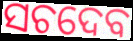
ସଚଦେବ